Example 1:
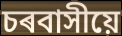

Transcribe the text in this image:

চৰবাসীয়ে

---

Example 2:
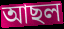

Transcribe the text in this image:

আছল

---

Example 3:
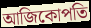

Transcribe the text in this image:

আজিকোপতি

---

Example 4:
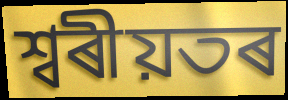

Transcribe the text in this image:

শ্বৰীয়তৰ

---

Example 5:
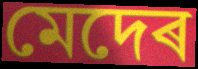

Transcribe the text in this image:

মেদেৰ